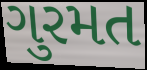
ગુરમત